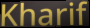
Kharif